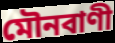
মৌনবাণী